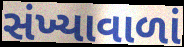
સંખ્યાવાળાં